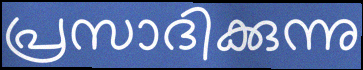
പ്രസാദിക്കുന്നു